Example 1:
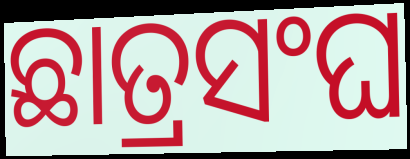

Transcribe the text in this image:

ଛାତ୍ରସଂଘ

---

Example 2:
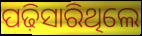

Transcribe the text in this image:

ପଢ଼ିସାରିଥିଲେ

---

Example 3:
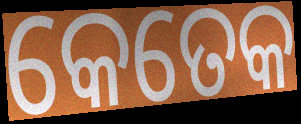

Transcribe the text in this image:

କେତେକ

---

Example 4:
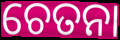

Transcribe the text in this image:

ଚେତନା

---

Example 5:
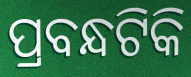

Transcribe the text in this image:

ପ୍ରବନ୍ଧଟିକି